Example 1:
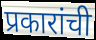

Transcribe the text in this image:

प्रकारांची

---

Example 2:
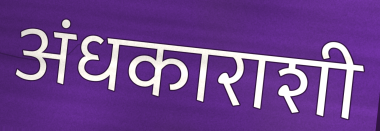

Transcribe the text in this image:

अंधकाराशी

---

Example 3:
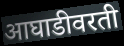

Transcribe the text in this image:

आघाडीवरती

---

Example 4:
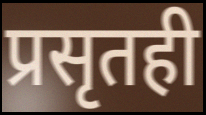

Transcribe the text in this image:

प्रसृतही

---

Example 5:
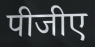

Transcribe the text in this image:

पीजीए